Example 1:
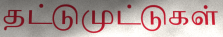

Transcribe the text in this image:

தட்டுமுட்டுகள்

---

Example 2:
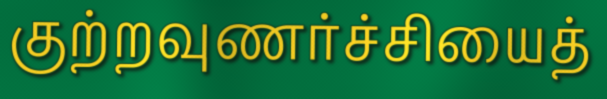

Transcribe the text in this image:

குற்றவுணர்ச்சியைத்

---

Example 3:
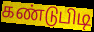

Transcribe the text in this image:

கண்டுபிடி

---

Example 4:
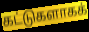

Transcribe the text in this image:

கட்டுகளாகக்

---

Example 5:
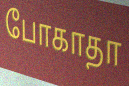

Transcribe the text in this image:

போகாதா